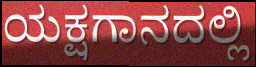
ಯಕ್ಷಗಾನದಲ್ಲಿ